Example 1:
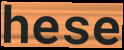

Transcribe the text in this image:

hese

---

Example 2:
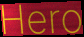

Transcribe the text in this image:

Hero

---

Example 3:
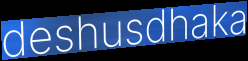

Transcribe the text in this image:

deshusdhaka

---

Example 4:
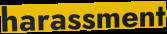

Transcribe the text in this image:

harassment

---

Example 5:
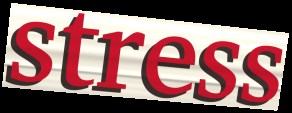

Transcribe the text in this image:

stress